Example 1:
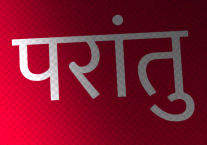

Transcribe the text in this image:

परांतु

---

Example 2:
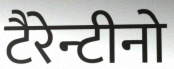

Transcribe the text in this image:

टैरेन्टीनो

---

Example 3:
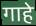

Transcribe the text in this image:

गाहे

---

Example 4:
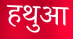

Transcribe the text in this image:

हथुआ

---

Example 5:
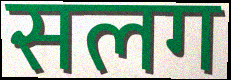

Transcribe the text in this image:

सलग